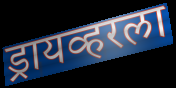
ड्रायव्हरला